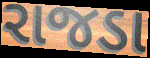
રાજડા